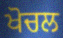
ਖੋਚਲ